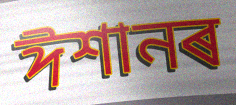
ঈশানৰ